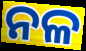
ନଳ